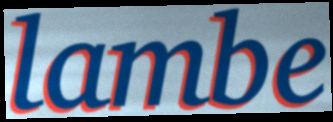
lambe